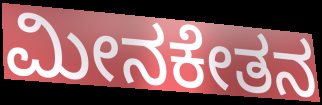
ಮೀನಕೇತನ